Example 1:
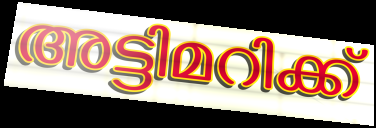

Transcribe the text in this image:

അട്ടിമറിക്ക്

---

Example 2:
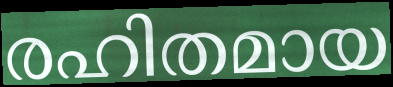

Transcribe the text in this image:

രഹിതമായ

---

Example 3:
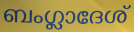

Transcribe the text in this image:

ബംഗ്ലാദേശ്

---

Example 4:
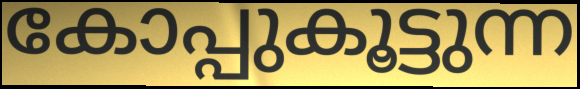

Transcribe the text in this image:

കോപ്പുകൂട്ടുന്ന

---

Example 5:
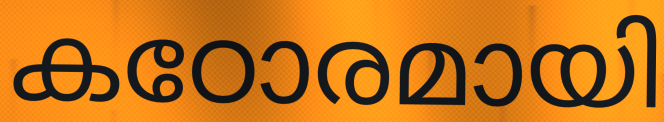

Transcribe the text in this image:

കഠോരമായി